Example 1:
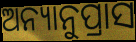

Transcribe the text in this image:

ଅନ୍ୟାନୁପ୍ରାସ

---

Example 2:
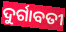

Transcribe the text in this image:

ଦୁର୍ଗାବତୀ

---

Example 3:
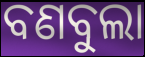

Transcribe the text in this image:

ବଣବୁଲା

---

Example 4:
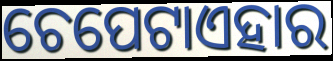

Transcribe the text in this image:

ଚେପେଟାଏହାର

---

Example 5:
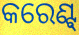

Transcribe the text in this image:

କରେଣ୍ଟ୍